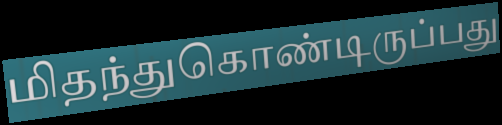
மிதந்துகொண்டிருப்பது